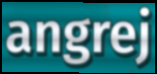
angrej